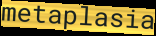
metaplasia